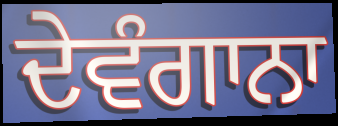
ਦੇਵੰਗਾਨਾ